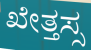
ಖೇತ್ತಸ್ಸ